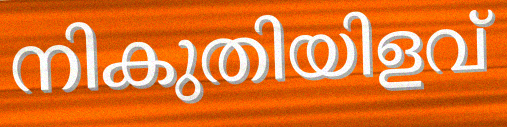
നികുതിയിളവ്